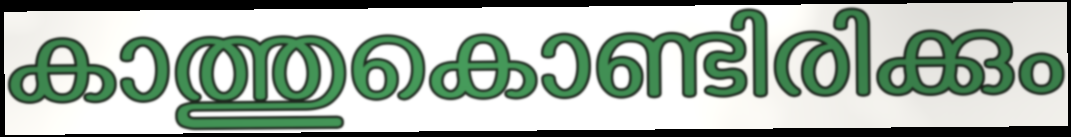
കാത്തുകൊണ്ടിരിക്കും